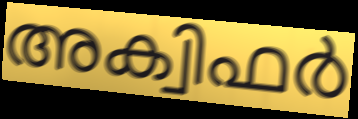
അക്വിഫർ